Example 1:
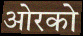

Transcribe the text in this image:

ओरको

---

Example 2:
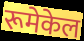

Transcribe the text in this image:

रूमेकेल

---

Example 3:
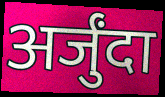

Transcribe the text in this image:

अर्जुंदा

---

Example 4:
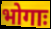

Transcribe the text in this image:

भोगाः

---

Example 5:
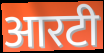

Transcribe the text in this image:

आरटी